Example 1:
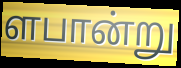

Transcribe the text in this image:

ளபான்று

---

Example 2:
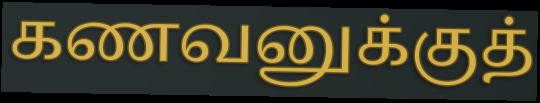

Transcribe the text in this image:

கணவனுக்குத்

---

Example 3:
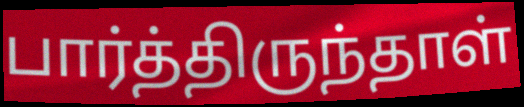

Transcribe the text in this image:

பார்த்திருந்தாள்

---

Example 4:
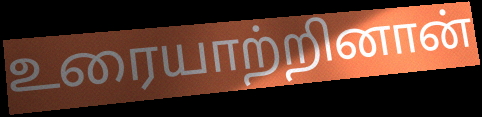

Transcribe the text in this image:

உரையாற்றினான்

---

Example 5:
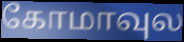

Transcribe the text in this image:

கோமாவுல